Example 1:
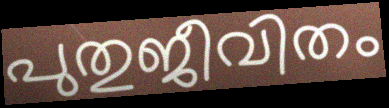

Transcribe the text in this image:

പുതുജീവിതം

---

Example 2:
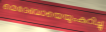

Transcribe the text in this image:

മെദേബായെയുംകുറിച്ചു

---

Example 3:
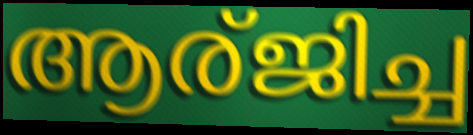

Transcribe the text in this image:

ആര്ജിച്ച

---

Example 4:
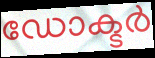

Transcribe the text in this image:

ഡോക്ടർ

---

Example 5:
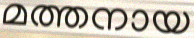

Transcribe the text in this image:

മത്തനായ